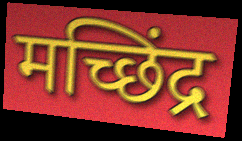
मच्छिंद्र